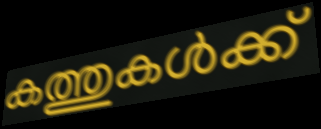
കത്തുകൾക്ക്